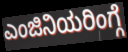
ಎಂಜಿನಿಯರಿಂಗ್ಗೆ